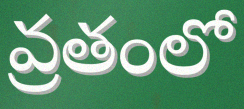
వ్రతంలో